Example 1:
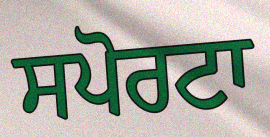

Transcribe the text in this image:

ਸਪੋਰਟਾ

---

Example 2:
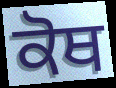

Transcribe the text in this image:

ਕੋਥ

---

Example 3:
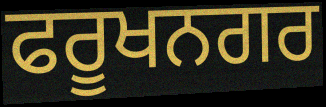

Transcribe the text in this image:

ਫਰੂਖਨਗਰ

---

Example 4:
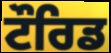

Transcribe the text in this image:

ਟੌਰਿਡ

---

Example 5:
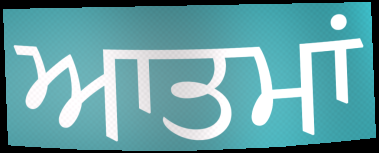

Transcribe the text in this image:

ਆਤਮਾਂ